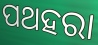
ପଥହରା